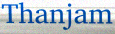
Thanjam